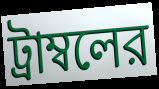
ট্রাম্বলের